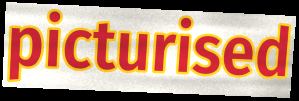
picturised